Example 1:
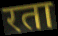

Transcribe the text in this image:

रता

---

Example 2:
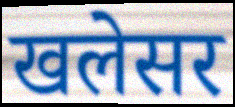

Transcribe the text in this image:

खलेसर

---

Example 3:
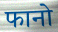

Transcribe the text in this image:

फानो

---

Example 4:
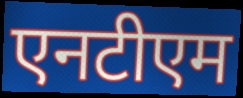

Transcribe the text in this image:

एनटीएम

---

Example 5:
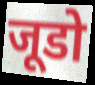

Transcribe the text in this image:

जूडो